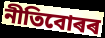
নীতিবোৰৰ